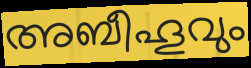
അബീഹൂവും